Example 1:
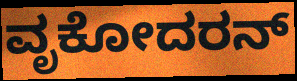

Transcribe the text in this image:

ವೃಕೋದರನ್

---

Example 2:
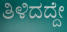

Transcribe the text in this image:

ತಿಳಿದದ್ದೇ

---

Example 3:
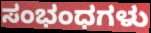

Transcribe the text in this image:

ಸಂಭಂಧಗಳು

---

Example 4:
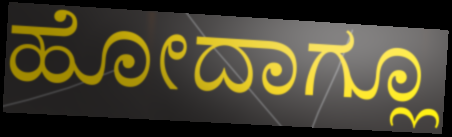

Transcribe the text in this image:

ಹೋದಾಗ್ಲೂ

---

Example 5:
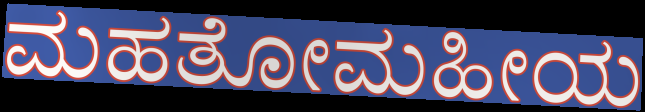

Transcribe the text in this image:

ಮಹತೋಮಹೀಯ